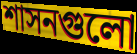
শাসনগুলো